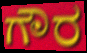
ಗೌರ